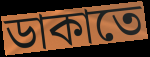
ডাকাতে